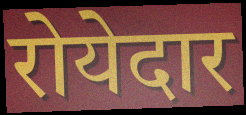
रोयेदार